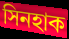
সিনহাক